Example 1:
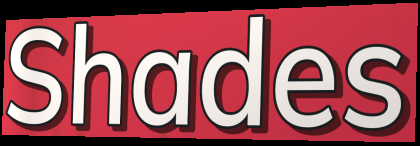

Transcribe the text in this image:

Shades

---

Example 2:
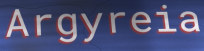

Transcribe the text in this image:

Argyreia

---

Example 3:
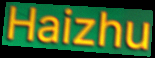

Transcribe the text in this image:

Haizhu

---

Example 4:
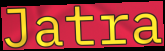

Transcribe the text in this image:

Jatra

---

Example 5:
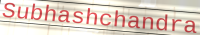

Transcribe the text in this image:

Subhashchandra